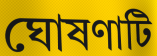
ঘোষণাটি